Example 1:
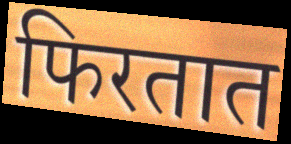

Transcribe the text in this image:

फिरतात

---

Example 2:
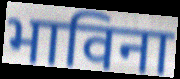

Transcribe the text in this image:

भाविना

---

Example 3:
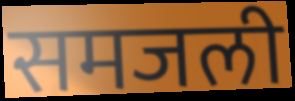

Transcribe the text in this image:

समजली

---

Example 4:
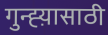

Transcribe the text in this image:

गुन्ह्य़ासाठी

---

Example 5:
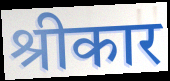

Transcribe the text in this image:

श्रीकार